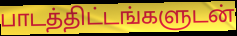
பாடத்திட்டங்களுடன்